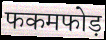
फकमफोड़